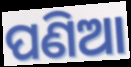
ପଣିଆ